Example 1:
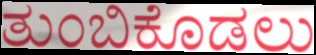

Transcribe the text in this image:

ತುಂಬಿಕೊಡಲು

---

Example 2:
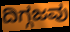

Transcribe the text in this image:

ದಿಗ್ಗಜವು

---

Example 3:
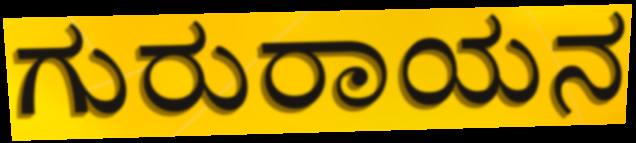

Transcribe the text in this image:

ಗುರುರಾಯನ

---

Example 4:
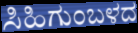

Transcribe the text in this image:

ಸಿಹಿಗುಂಬಳದ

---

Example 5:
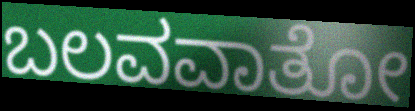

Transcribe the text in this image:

ಬಲವವಾತೋ